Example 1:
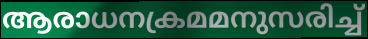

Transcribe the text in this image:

ആരാധനക്രമമനുസരിച്ച്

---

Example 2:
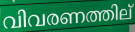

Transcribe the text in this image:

വിവരണത്തില്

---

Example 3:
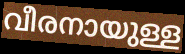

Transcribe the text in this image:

വീരനായുള്ള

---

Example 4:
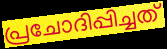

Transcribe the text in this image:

പ്രചോദിപ്പിച്ചത്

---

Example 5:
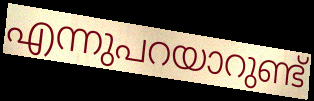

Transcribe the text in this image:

എന്നുപറയാറുണ്ട്